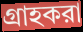
গ্রাহকরা